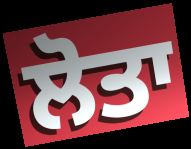
ਲੋਤਾ